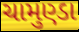
ચામુણ્ડા